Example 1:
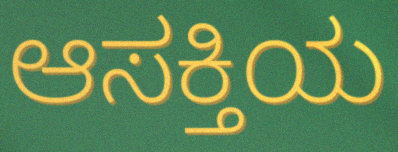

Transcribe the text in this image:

ಆಸಕ್ತಿಯ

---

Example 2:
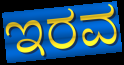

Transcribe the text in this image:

ಇರವ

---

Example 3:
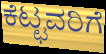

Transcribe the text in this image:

ಕೆಟ್ಟವರಿಗೆ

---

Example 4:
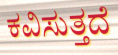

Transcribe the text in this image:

ಕವಿಸುತ್ತದೆ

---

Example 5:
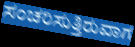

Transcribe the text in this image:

ಸಂಚರಿಸುತ್ತಿರುವಾಗ